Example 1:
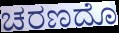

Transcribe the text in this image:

ಚರಣದೊ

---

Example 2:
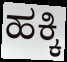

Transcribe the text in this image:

ಹಕ್ಕಿ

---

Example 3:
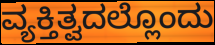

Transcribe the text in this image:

ವ್ಯಕ್ತಿತ್ವದಲ್ಲೊಂದು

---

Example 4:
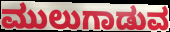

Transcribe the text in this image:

ಮುಲುಗಾಡುವ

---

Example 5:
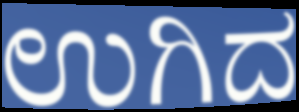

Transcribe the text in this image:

ಉಗಿದ